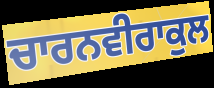
ਚਾਰਨਵੀਰਾਕੁਲ